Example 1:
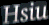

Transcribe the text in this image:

Hsiu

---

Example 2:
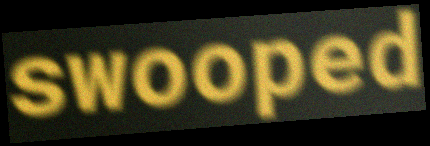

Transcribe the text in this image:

swooped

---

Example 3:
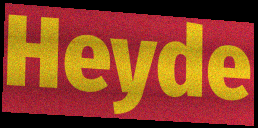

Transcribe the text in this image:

Heyde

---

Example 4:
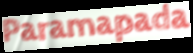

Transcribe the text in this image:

Paramapada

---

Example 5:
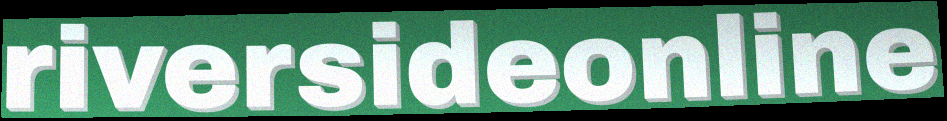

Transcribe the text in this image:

riversideonline